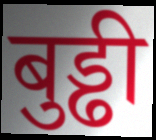
बुड्ढी